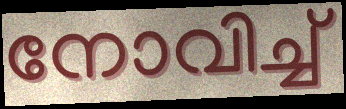
നോവിച്ച്